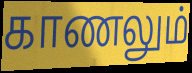
காணலும்